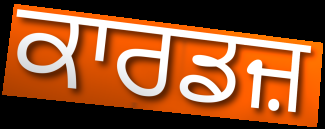
ਕਾਰਡਜ਼